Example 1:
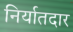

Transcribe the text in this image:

निर्यातदार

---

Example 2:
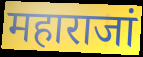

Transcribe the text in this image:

महाराजां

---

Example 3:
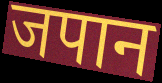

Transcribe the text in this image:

जपान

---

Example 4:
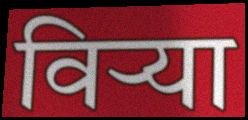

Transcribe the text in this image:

विऱ्या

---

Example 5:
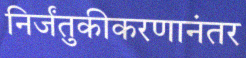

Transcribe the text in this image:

निर्जंतुकीकरणानंतर